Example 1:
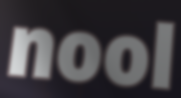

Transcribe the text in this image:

nool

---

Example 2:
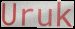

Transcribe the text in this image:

Uruk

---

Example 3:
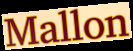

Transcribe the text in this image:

Mallon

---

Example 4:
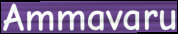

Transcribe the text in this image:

Ammavaru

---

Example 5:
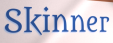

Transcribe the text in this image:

Skinner